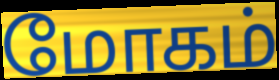
மோகம்